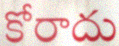
కోరాదు